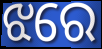
ଝରେ